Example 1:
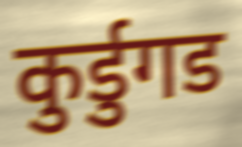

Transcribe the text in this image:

कुर्डुगड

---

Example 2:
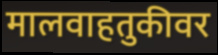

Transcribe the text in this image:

मालवाहतुकीवर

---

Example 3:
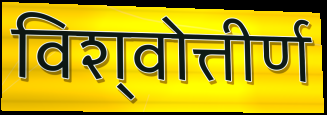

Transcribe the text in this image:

विश्वोत्तीर्ण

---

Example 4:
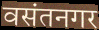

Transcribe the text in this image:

वसंतनगर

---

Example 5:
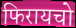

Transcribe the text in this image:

फिरायचो